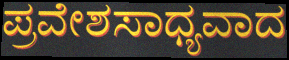
ಪ್ರವೇಶಸಾಧ್ಯವಾದ